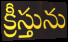
క్రీస్తును